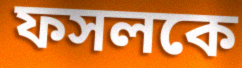
ফসলকে